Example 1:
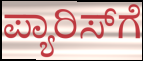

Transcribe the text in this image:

ಪ್ಯಾರಿಸ್‍ಗೆ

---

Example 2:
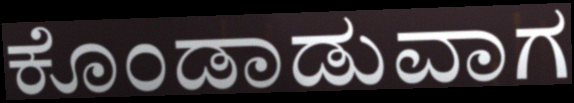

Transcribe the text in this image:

ಕೊಂಡಾಡುವಾಗ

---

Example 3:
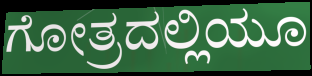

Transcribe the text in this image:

ಗೋತ್ರದಲ್ಲಿಯೂ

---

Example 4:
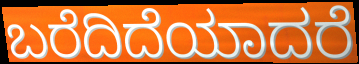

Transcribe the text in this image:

ಬರೆದಿದೆಯಾದರೆ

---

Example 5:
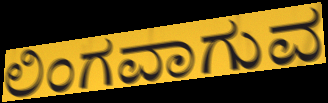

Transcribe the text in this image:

ಲಿಂಗವಾಗುವ